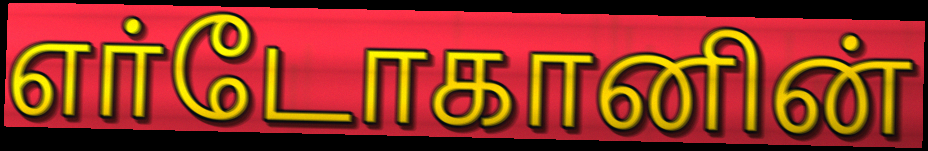
எர்டோகானின்